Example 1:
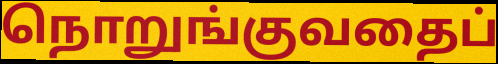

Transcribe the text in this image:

நொறுங்குவதைப்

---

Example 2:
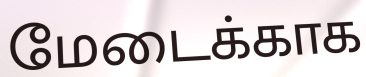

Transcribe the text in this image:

மேடைக்காக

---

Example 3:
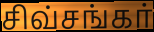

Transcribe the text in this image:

சிவ்சங்கர்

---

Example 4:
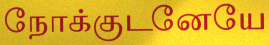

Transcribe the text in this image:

நோக்குடனேயே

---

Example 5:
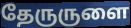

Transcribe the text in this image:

தேருருளை